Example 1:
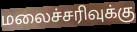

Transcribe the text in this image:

மலைச்சரிவுக்கு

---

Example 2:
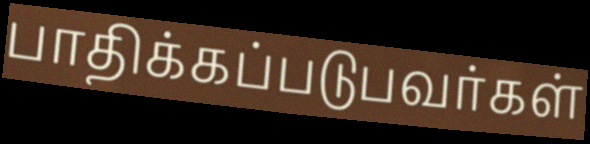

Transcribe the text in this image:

பாதிக்கப்படுபவர்கள்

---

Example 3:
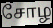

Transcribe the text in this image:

சோழ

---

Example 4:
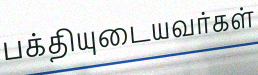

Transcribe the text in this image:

பக்தியுடையவர்கள்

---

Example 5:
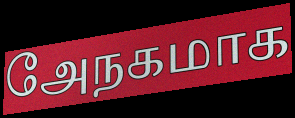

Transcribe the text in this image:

அேநகமாக